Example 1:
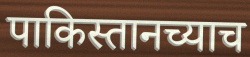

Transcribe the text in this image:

पाकिस्तानच्याच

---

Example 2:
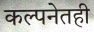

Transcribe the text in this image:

कल्पनेतही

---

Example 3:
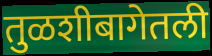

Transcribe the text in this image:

तुळशीबागेतली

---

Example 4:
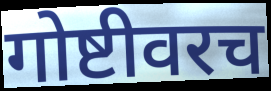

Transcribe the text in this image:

गोष्टीवरच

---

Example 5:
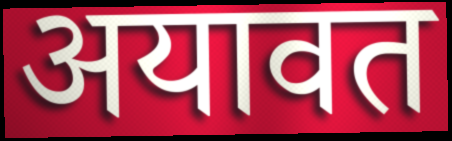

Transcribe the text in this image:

अयावत